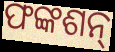
ଫଙ୍କଶନ୍